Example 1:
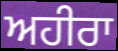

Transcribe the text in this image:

ਅਹੀਰਾ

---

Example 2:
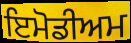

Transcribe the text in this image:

ਇਮੋਡੀਅਮ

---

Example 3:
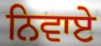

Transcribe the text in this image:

ਨਿਵਾਏ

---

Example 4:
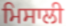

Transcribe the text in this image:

ਮਿਸਾਲੀ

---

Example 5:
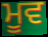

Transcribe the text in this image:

ਮੂਵ